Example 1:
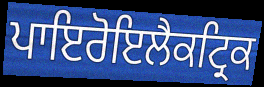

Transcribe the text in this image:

ਪਾਇਰੋਇਲੈਕਟ੍ਰਿਕ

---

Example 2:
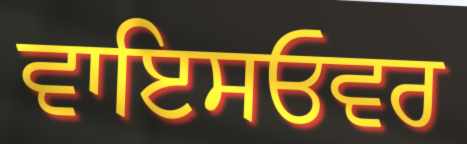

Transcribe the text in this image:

ਵਾਇਸਓਵਰ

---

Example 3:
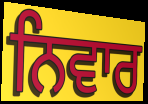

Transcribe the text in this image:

ਨਿਵਾਰ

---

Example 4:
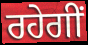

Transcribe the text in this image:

ਰਹੇਗੀਂ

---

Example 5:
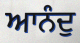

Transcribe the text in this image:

ਆਨੰਦੁ